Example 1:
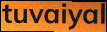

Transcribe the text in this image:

tuvaiyal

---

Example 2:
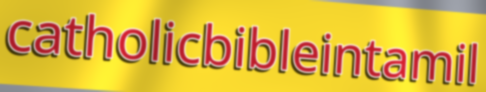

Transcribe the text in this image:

catholicbibleintamil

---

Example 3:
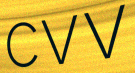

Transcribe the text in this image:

cvv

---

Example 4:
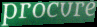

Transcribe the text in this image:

procure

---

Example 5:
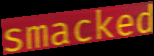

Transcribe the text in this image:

smacked